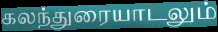
கலந்துரையாடலும்